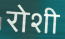
रोशी